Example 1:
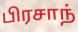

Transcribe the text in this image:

பிரசாந்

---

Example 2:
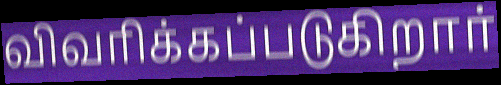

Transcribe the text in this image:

விவரிக்கப்படுகிறார்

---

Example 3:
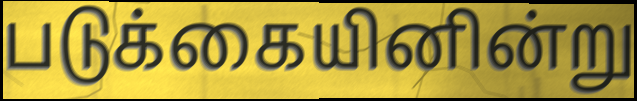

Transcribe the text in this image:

படுக்கையினின்று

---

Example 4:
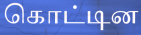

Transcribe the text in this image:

கொட்டின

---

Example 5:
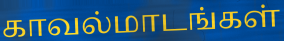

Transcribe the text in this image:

காவல்மாடங்கள்